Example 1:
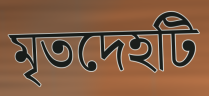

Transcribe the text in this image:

মৃতদেহটি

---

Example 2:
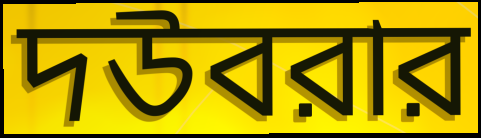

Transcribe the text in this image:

দউবরার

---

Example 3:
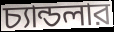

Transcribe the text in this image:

চ্যান্ডলার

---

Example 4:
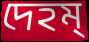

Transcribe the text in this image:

দেহম্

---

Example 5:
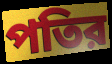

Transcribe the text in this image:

পতির